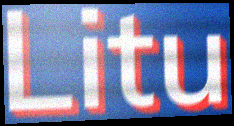
Litu